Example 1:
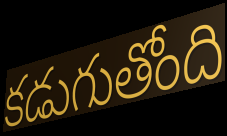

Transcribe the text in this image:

కడుగుతోంది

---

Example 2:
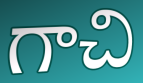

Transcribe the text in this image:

గాచి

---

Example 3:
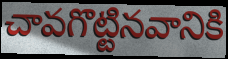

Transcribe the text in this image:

చావగొట్టినవానికి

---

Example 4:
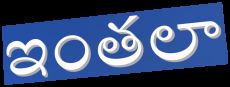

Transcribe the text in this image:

ఇంతలా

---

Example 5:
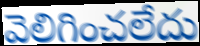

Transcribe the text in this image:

వెలిగించలేదు